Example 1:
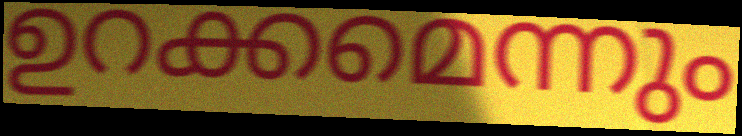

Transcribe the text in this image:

ഉറക്കമെന്നും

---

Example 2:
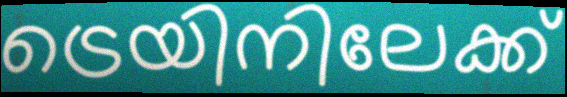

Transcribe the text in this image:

ട്രെയിനിലേക്ക്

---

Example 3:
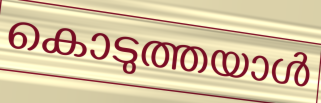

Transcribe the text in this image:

കൊടുത്തയാൾ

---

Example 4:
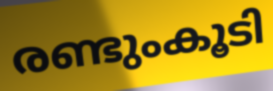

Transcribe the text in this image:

രണ്ടുംകൂടി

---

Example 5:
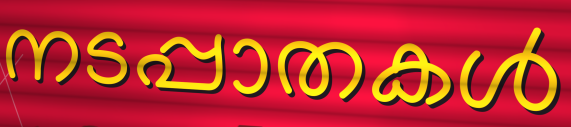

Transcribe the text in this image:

നടപ്പാതകൾ